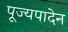
पूज्यपादेन